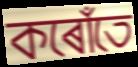
কৰোঁতে